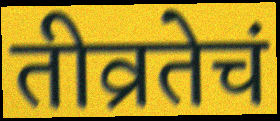
तीव्रतेचं